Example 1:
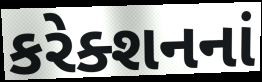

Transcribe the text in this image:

કરેક્શનનાં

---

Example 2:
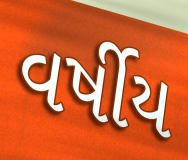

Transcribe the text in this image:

વર્ષીય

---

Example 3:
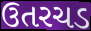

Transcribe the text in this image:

ઉતરચડ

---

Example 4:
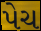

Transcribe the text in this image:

પેચ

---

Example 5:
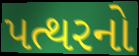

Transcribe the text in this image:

પત્થરનો